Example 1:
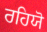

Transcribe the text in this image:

ਰਹਿਯੋ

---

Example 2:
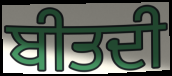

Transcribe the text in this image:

ਬੀਤਦੀ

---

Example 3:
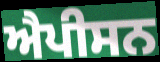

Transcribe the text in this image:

ਐਪੀਸਨ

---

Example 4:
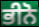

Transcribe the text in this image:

ਭੀਨੋ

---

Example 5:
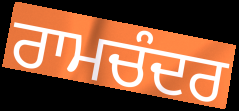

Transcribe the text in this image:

ਰਾਮਚੰਦਰ